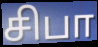
சிபா